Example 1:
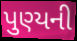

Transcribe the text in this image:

પુણ્યની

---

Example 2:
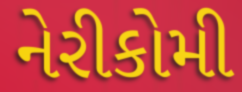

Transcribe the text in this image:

નેરીકોમી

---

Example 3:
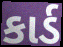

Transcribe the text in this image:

કાર્ડ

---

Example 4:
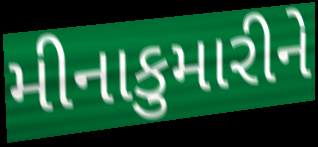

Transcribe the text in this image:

મીનાકુમારીને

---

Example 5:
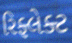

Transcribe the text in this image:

રિફ્લેક્ટ